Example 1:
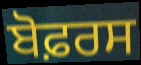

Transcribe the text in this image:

ਬੋਫ਼ਰਸ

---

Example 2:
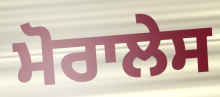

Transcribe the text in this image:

ਮੋਰਾਲੇਸ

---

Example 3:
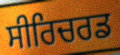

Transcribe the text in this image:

ਸੀਰਿਚਰਡ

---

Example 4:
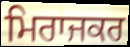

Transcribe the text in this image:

ਮਿਰਾਜਕਰ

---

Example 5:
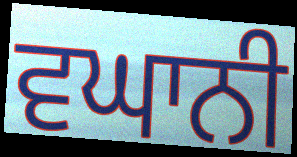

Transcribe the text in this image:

ਵਘਾਨੀ